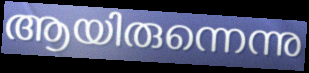
ആയിരുന്നെന്നു